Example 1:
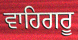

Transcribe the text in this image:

ਵਾਹਿਗਰੂ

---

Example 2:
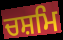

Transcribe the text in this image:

ਚਸ਼ਮਿ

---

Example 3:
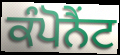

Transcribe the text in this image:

ਕੰਪੋਨੈਂਟ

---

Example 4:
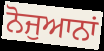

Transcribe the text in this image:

ਨੋਜੁਆਨਾਂ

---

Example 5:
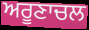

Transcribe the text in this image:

ਅਰੂਣਾਚਲ